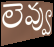
లెవ్వు